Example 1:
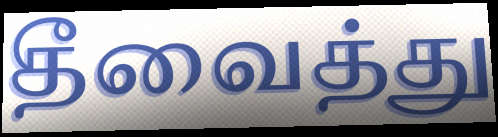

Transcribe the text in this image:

தீவைத்து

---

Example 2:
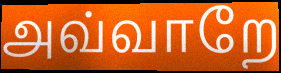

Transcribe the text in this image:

அவ்வாறே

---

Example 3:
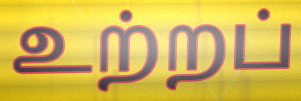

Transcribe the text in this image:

உற்றப்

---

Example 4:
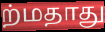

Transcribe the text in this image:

ற்மதாது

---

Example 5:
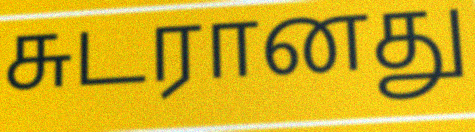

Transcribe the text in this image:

சுடரானது